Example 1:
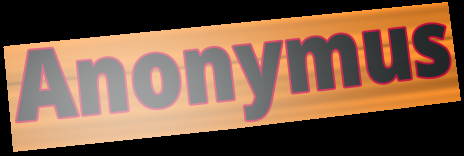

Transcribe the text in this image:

Anonymus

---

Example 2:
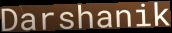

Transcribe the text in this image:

Darshanik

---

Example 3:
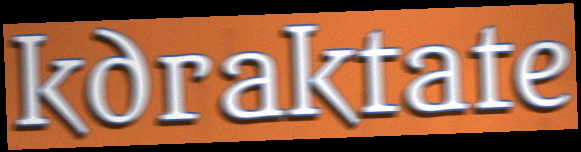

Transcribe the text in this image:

kdraktate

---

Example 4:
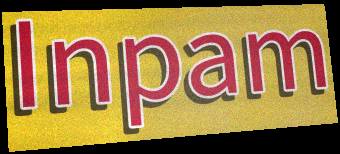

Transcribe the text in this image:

Inpam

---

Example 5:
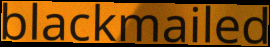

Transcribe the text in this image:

blackmailed